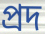
প্রদ